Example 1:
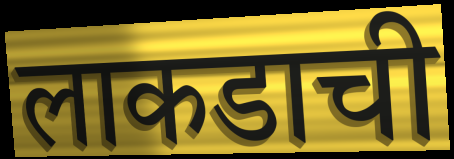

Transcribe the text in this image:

लाकडाची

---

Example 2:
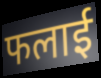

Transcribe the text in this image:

फलाई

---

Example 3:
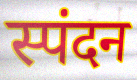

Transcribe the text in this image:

स्पंदन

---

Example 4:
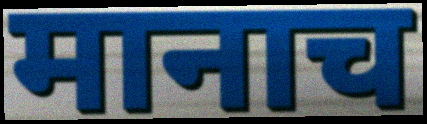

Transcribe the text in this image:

मानाच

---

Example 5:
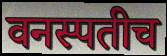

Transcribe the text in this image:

वनस्पतीच